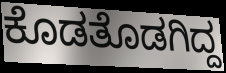
ಕೊಡತೊಡಗಿದ್ದ